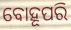
ବୋହୂପରି